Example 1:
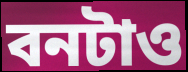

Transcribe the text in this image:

বনটাও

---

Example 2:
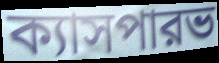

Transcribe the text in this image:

ক্যাসপারভ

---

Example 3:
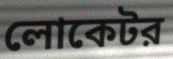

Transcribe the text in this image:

লোকেটর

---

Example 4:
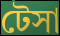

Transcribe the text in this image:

টেসা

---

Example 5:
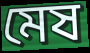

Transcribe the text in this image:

মেষ